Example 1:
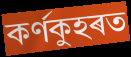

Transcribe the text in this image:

কৰ্ণকুহৰত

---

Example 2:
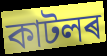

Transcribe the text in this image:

কাটলৰ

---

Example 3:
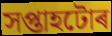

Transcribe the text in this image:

সপ্তাহটোৰ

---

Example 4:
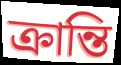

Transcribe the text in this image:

ক্ৰান্তি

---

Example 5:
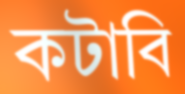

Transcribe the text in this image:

কটাবি